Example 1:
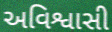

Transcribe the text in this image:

અવિશ્વાસી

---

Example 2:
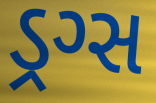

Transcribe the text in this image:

ડ્રગ્સ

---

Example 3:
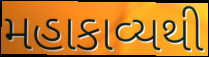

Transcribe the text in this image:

મહાકાવ્યથી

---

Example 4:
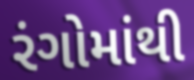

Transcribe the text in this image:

રંગોમાંથી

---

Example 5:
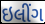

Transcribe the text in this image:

ઇલીંગ